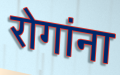
रोगांना